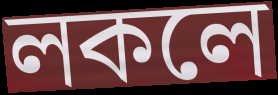
লকলে